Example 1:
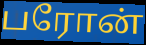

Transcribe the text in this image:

பரோன்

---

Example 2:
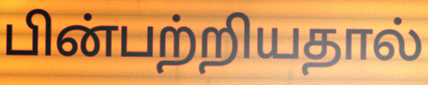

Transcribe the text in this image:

பின்பற்றியதால்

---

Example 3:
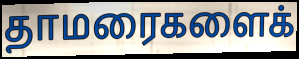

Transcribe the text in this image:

தாமரைகளைக்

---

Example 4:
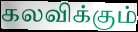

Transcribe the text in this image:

கலவிக்கும்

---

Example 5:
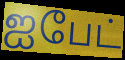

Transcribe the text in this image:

ஐபேட்